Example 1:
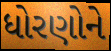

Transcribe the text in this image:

ધોરણોને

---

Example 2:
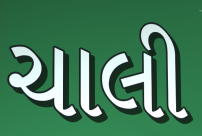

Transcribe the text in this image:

ચાલી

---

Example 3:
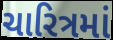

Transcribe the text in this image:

ચારિત્રમાં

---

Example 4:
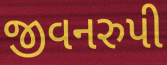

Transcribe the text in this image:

જીવનરુપી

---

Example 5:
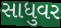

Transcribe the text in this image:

સાધુવર